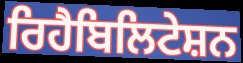
ਰਿਹੈਬਿਲਿਟੇਸ਼ਨ